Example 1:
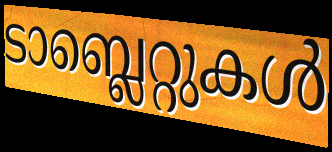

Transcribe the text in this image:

ടാബ്ലെറ്റുകൾ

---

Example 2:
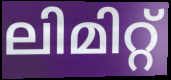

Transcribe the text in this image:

ലിമിറ്റ്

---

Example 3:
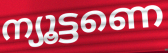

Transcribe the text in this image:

ന്യൂട്ടണെ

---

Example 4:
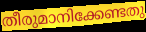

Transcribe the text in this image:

തീരുമാനിക്കേണ്ടതു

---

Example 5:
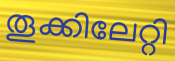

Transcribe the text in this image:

തൂക്കിലേറ്റി